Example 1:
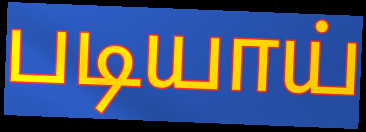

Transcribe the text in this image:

படியாய்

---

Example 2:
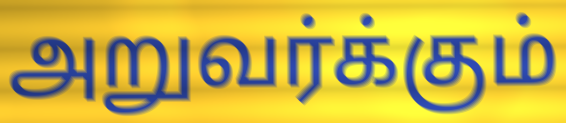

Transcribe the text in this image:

அறுவர்க்கும்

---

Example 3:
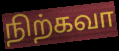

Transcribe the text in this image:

நிற்கவா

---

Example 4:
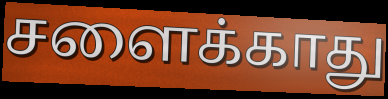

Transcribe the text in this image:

சளைக்காது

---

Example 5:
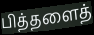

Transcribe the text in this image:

பித்தளைத்